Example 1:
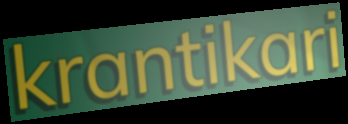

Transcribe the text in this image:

krantikari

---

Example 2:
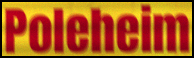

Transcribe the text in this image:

Poleheim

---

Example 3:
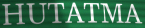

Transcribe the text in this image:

HUTATMA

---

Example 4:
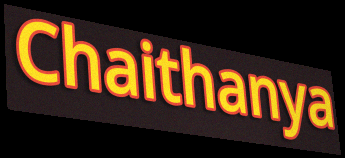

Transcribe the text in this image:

Chaithanya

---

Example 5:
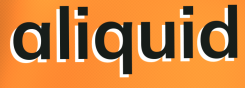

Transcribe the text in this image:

aliquid